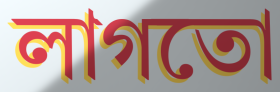
লাগতো